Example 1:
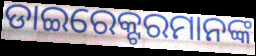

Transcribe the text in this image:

ଡାଇରେକ୍ଟରମାନଙ୍କ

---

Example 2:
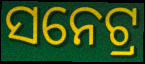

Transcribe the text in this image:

ସନେଟ୍ର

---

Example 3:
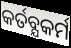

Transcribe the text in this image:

କର୍ତବ୍ଯକର୍ମ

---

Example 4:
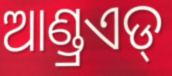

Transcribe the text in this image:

ଆଣ୍ଡ୍ରଏଡ୍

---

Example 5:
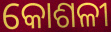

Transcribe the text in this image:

କୋଶଳୀ